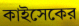
কাইসেকের